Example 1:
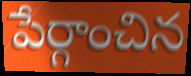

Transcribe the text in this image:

పేర్గాంచిన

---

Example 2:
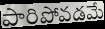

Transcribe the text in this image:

పారిపోవడమే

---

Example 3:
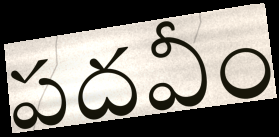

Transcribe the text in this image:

పదవీం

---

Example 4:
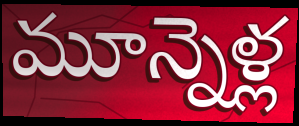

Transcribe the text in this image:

మూన్నెళ్ల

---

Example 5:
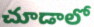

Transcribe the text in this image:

చూడాలో